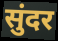
सुंदर